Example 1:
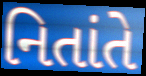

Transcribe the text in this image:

નિતાંતે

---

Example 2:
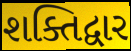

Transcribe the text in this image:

શક્તિદ્વાર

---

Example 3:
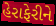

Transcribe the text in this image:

હેરાફેરીને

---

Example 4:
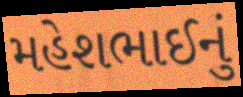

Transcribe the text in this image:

મહેશભાઈનું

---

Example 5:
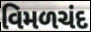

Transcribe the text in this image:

વિમળચંદ